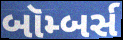
બૉમ્બર્સ